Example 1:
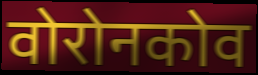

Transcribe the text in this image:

वोरोनकोव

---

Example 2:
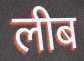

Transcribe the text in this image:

लीब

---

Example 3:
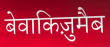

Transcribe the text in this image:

बेवाकिज़ुमैब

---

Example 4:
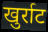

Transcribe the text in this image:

खुर्राट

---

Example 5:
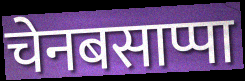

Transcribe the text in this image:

चेनबसाप्पा